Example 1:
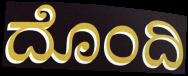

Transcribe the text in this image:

ದೊಂದಿ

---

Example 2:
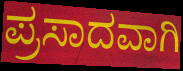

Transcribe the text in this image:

ಪ್ರಸಾದವಾಗಿ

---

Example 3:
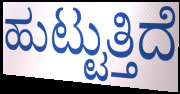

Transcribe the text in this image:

ಹುಟ್ಟುತ್ತಿದೆ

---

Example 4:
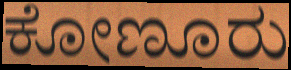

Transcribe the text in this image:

ಕೋಣೂರು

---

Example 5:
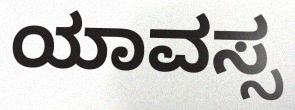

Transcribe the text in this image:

ಯಾವಸ್ಸ